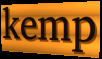
kemp